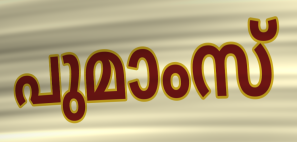
പുമാംസ്